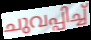
ചുവപ്പിച്ച്